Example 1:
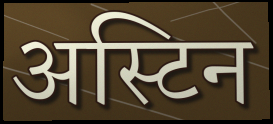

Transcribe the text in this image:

अस्टिन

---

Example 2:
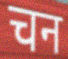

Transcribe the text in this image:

चन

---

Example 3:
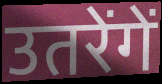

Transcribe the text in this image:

उतरेंगें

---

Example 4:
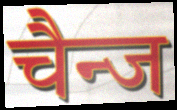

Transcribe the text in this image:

चैन्ज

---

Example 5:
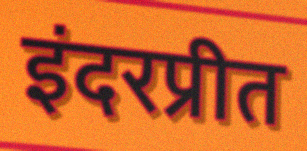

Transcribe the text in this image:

इंदरप्रीत